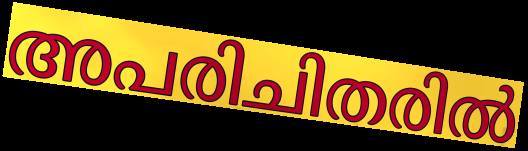
അപരിചിതരിൽ